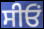
ਸੀਓਂ